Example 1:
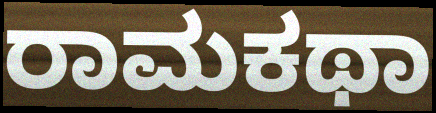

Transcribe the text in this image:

ರಾಮಕಥಾ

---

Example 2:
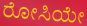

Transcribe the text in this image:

ರೋಸಿಯೇ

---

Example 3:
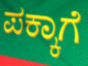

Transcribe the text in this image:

ಪಕ್ಕಾಗೆ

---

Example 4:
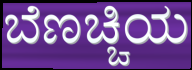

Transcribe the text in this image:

ಬೆಣಚ್ಚಿಯ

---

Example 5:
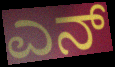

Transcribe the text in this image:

ಎನ್